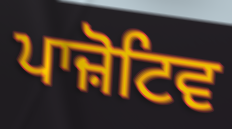
ਪਾਜ਼ੋਟਿਵ